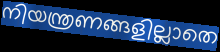
നിയന്ത്രണങ്ങളില്ലാതെ